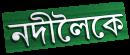
নদীলৈকে